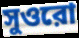
সুওরো